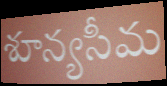
శూన్యసీమ